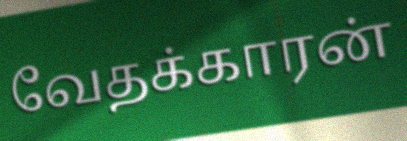
வேதக்காரன்